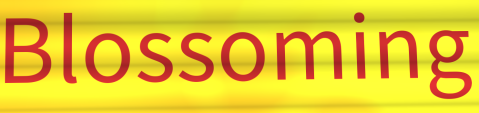
Blossoming